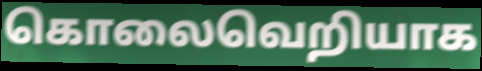
கொலைவெறியாக